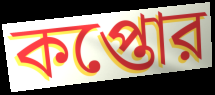
কপ্তোর